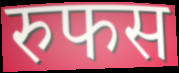
रुफस